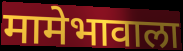
मामेभावाला